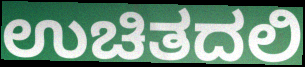
ಉಚಿತದಲಿ